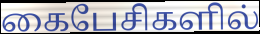
கைபேசிகளில்